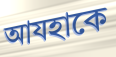
আযহাকে